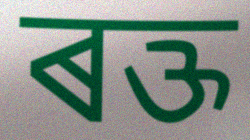
ৰক্ত